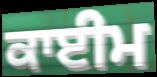
ਕਾਈਮ